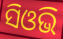
ସିଓଭି